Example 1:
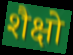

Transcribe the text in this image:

शैक्षो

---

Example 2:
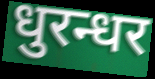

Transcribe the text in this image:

धुरन्धर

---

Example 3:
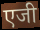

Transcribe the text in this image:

एजी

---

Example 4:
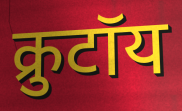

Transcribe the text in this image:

क्रुटॉय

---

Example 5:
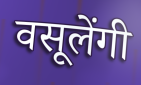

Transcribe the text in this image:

वसूलेंगी